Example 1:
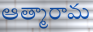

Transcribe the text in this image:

ఆత్మారామ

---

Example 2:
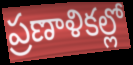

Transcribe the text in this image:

ప్రణాళికల్లో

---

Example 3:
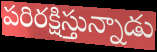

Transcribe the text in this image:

పరిరక్షిస్తున్నాడు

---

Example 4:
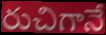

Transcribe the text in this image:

రుచిగానే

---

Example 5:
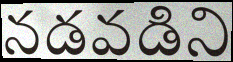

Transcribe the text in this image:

నడవడిని